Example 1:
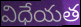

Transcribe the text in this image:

విధేయత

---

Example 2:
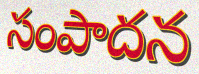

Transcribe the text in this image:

సంపాదన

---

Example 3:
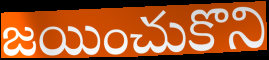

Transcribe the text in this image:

జయించుకొని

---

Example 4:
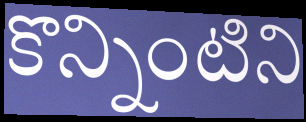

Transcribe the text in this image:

కొన్నింటిని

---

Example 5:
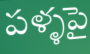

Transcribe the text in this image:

పళ్ళపై